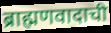
ब्राह्मणवादाची